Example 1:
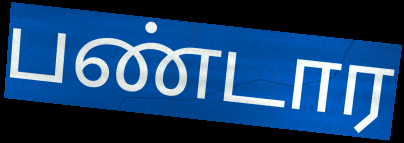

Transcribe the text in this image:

பண்டார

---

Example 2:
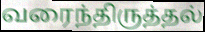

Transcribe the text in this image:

வரைந்திருத்தல்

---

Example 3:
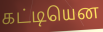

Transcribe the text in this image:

கட்டியென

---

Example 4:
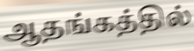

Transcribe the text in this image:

ஆதங்கத்தில்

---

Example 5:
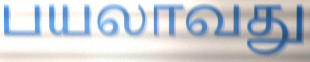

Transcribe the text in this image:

பயலாவது